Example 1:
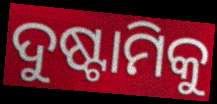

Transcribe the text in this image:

ଦୁଷ୍ଟାମିକୁ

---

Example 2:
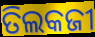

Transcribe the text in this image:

ତିଲକଜୀ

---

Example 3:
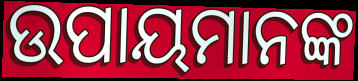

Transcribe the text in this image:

ଉପାୟମାନଙ୍କ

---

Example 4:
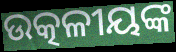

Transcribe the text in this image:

ଉତ୍କଳୀୟଙ୍କ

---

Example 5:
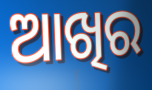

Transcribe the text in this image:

ଆଖିର